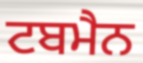
ਟਬਮੈਨ